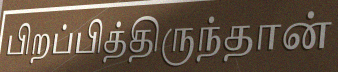
பிறப்பித்திருந்தான்